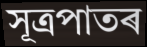
সূত্ৰপাতৰ